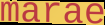
marae